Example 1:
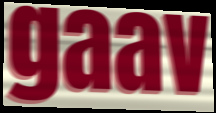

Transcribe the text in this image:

gaav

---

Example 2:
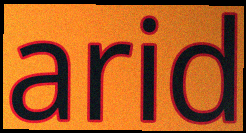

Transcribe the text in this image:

arid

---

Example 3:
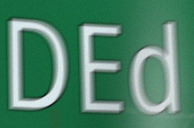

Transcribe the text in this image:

DEd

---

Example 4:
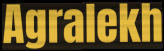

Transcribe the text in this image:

Agralekh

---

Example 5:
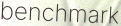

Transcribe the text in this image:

benchmark